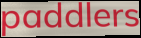
paddlers